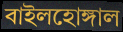
বাইলহোঙ্গাল